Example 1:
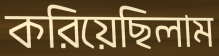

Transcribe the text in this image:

করিয়েছিলাম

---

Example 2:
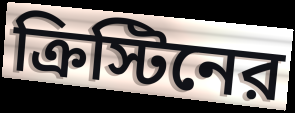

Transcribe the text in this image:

ক্রিস্টিনের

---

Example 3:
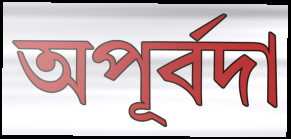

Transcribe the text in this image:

অপূর্বদা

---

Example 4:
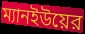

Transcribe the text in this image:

ম্যানইউয়ের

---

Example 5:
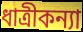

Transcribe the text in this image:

ধাত্রীকন্যা